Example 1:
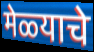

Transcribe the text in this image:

मेळ्याचे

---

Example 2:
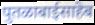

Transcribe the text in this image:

पुतळाबाईसाहेब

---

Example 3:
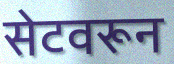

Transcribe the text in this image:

सेटवरून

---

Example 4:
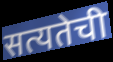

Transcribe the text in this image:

सत्यतेची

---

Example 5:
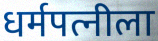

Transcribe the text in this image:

धर्मपत्नीला